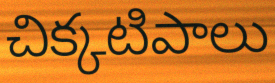
చిక్కటిపాలు